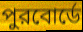
পুরবোর্ডে